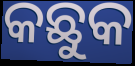
କଛୁକ